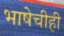
भाषेचीही